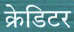
क्रेडिटर